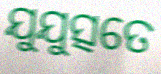
ଯୁଯୁତ୍ସତେ